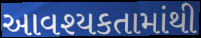
આવશ્યકતામાંથી